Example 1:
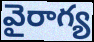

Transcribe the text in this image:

వైరాగ్య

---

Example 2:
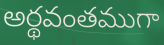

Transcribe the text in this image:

అర్థవంతముగా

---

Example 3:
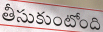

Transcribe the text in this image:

తీసుకుంటోంది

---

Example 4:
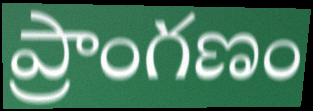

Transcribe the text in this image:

ప్రాంగణం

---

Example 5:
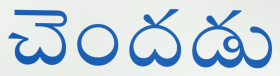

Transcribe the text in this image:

చెందడు